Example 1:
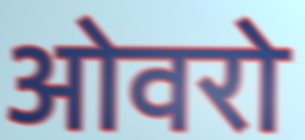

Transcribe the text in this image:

ओवरो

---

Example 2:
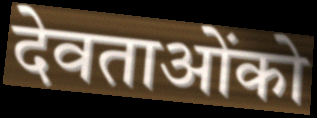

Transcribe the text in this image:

देवताओंको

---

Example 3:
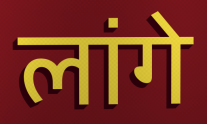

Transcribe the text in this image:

लांगे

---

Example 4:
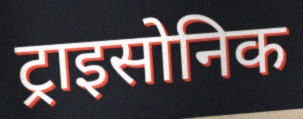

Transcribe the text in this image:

ट्राइसोनिक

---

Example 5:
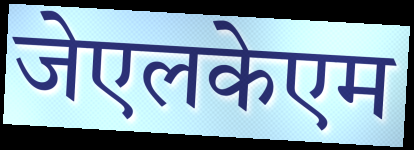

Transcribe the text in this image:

जेएलकेएम